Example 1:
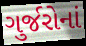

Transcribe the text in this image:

ગુર્જરોનાં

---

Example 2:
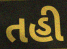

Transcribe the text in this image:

તહી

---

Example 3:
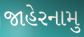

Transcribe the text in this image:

જાહેરનામુ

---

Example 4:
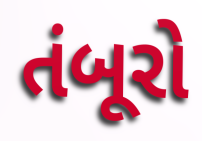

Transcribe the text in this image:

તંબૂરો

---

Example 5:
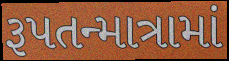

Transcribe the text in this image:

રૂપતન્માત્રામાં